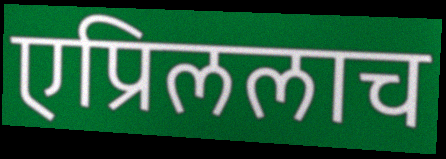
एप्रिललाच